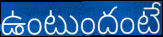
ఉంటుందంటే